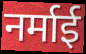
नर्माई